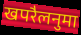
खपरैलनुमा